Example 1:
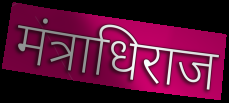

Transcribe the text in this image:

मंत्राधिराज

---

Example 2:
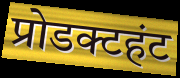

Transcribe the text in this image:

प्रोडक्टहंट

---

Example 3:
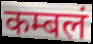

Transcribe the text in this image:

कम्बलं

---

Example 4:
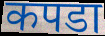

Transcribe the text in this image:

कपडा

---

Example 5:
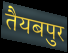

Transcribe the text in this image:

तैयबपुर